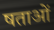
षताओं